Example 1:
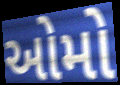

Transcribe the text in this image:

ઓમો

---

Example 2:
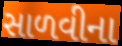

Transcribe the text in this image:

સાળવીના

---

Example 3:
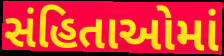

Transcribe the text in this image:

સંહિતાઓમાં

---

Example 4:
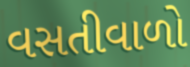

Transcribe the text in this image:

વસતીવાળો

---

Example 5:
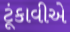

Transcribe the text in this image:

ટૂંકાવીએ